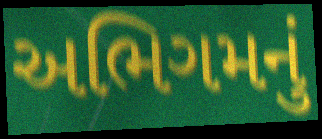
અભિગમનું